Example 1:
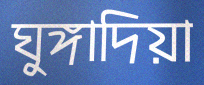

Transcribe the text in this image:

ঘুঙ্গাদিয়া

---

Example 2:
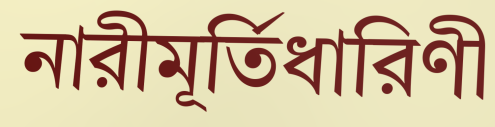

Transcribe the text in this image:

নারীমূর্তিধারিণী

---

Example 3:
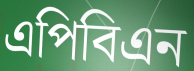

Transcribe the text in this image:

এপিবিএন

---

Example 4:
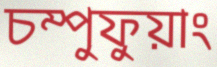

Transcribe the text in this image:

চম্পুফুয়াং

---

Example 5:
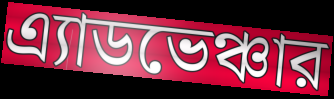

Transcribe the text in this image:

এ্যাডভেঞ্চার